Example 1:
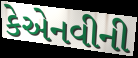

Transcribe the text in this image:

કેએનવીની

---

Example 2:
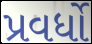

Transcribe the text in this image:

પ્રવર્ધો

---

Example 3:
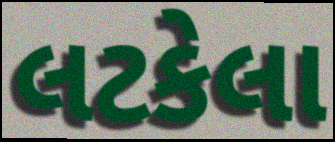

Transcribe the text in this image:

લટકેલા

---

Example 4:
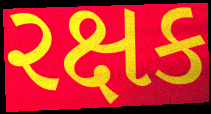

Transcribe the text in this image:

રક્ષક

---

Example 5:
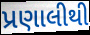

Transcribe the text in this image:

પ્રણાલીથી